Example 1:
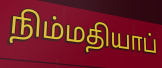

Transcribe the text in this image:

நிம்மதியாப்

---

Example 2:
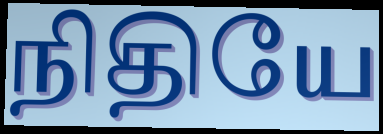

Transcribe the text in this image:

நிதியே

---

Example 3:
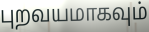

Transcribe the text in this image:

புறவயமாகவும்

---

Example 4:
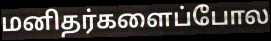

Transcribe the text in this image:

மனிதர்களைப்போல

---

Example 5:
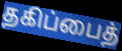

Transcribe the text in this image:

தகிப்பைத்